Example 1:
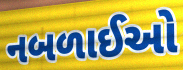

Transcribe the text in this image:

નબળાઈઓ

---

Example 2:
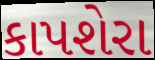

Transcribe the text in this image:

કાપશેરા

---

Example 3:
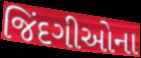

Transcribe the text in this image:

જિંદગીઓના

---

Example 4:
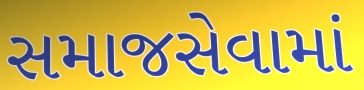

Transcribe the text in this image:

સમાજસેવામાં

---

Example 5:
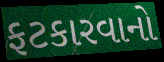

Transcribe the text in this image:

ફટકારવાનો